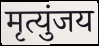
मृत्युंजय